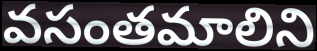
వసంతమాలిని